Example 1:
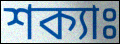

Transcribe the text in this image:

শক্যাঃ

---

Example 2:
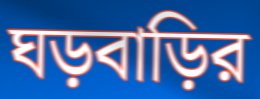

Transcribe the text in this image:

ঘড়বাড়ির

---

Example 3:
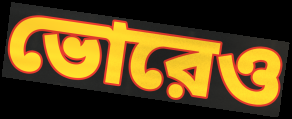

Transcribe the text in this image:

ভোরেও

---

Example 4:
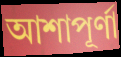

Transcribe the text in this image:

আশাপূর্ণা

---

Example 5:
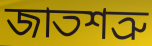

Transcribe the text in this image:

জাতশত্রু